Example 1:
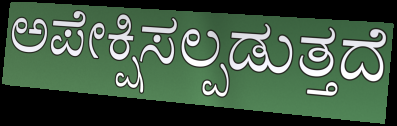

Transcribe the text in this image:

ಅಪೇಕ್ಷಿಸಲ್ಪಡುತ್ತದೆ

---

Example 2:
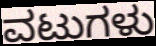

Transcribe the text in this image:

ವಟುಗಳು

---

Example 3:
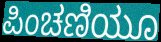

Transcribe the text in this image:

ಪಿಂಚಣಿಯೂ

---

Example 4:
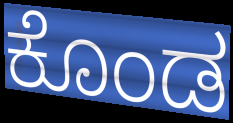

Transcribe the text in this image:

ಕೊಂಡ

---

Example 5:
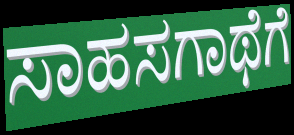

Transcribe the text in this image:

ಸಾಹಸಗಾಥೆಗೆ